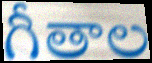
గీతాల